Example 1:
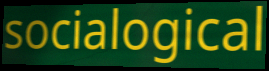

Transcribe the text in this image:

socialogical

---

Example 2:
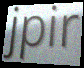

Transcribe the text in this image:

jpir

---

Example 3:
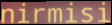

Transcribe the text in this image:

nirmisi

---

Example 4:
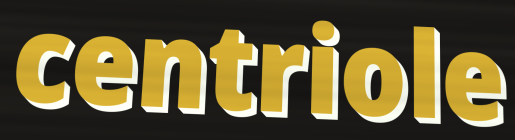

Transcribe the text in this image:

centriole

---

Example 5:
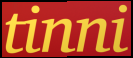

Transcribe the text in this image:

tinni